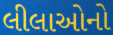
લીલાઓનો